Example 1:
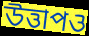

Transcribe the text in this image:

উত্তাপও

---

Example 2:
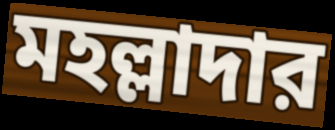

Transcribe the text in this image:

মহল্লাদার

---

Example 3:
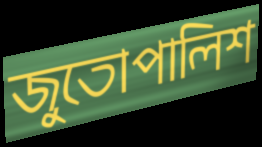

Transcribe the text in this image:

জুতোপালিশ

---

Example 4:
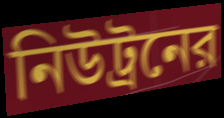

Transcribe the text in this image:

নিউট্রনের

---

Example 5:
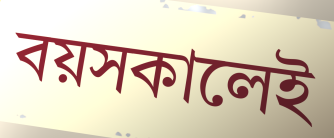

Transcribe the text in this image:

বয়সকালেই